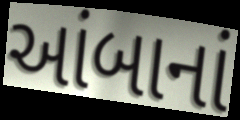
આંબાનાં